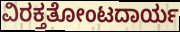
ವಿರಕ್ತತೋಂಟದಾರ್ಯ